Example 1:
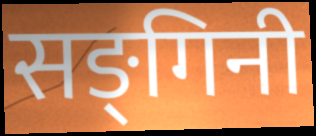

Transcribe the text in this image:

सङ्गिनी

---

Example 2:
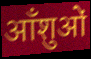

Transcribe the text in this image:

आँशुओं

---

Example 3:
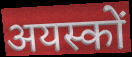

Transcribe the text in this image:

अयस्कों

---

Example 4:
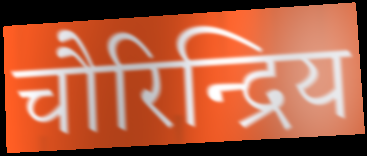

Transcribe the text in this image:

चौरिन्द्रिय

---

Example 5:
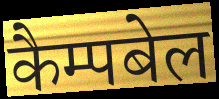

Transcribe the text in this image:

कैम्पबेल